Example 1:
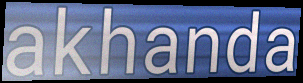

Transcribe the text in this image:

akhanda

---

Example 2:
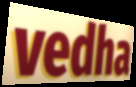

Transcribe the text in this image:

vedha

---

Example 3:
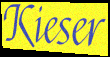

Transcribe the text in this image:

Kieser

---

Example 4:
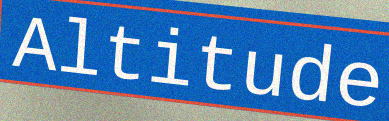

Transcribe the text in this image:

Altitude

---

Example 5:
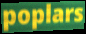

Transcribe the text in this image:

poplars